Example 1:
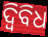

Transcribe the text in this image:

ଦ୍ଵିବିଧ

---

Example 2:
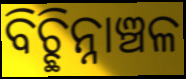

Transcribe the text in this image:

ବିଚ୍ଛିନ୍ନାଞ୍ଚଳ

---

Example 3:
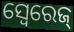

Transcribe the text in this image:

ସ୍ୱେରେଜ୍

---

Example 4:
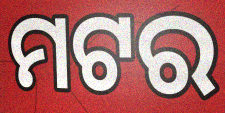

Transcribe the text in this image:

ମଟର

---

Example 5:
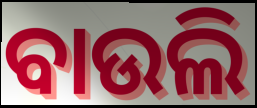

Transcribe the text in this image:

ବାଉଲି